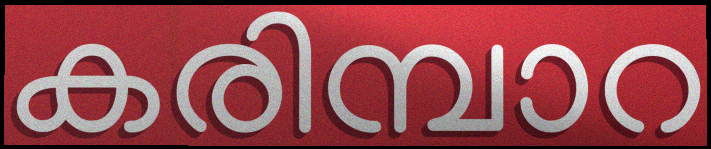
കരിമ്പാറ